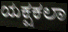
ಯಕ್ಷಕಲಾ